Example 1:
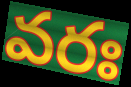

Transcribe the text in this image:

వరః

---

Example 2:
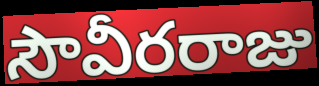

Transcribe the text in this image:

సౌవీరరాజు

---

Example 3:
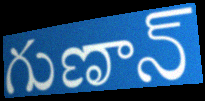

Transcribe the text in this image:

గుణాన్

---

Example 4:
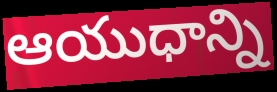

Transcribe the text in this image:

ఆయుధాన్ని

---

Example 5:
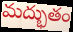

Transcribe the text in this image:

మద్భుతం